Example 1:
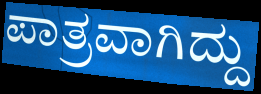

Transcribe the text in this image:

ಪಾತ್ರವಾಗಿದ್ದು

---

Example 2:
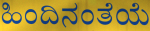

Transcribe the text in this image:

ಹಿಂದಿನಂತೆಯೆ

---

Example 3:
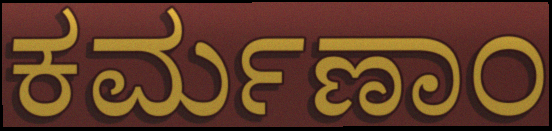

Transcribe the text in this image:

ಕರ್ಮಣಾಂ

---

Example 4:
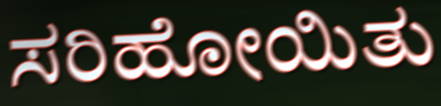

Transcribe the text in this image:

ಸರಿಹೋಯಿತು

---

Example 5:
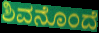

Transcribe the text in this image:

ಶಿವನೊಂದೆ